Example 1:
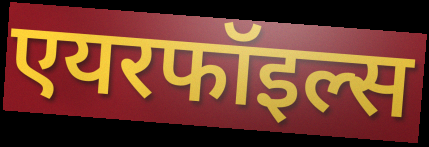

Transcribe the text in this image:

एयरफॉइल्स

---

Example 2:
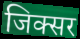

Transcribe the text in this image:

जिक्सर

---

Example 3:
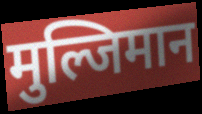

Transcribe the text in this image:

मुल्जिमान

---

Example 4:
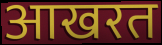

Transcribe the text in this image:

आखरत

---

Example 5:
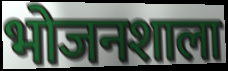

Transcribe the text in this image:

भोजनशाला